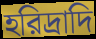
হরিদ্রাদি